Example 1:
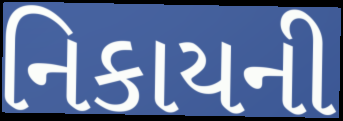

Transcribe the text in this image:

નિકાયની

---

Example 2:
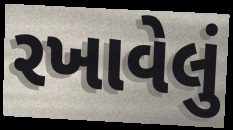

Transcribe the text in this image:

રખાવેલું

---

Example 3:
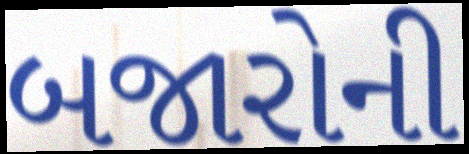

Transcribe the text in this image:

બજારોની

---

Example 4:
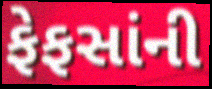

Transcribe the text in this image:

ફેફસાંની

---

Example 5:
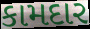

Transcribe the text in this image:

કામદાર